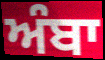
ਅੰਬਾ